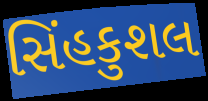
સિંહકુશલ